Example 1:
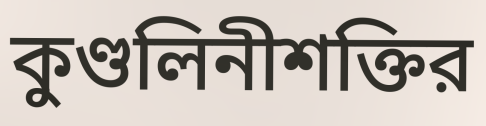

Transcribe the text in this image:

কুণ্ডলিনীশক্তির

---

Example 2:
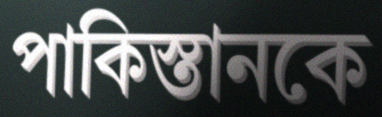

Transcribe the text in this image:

পাকিস্তানকে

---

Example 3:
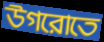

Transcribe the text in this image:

উগরোতে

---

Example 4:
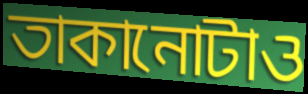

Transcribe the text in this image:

তাকানোটাও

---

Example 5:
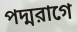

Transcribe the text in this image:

পদ্মরাগে